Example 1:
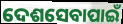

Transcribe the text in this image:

ଦେଶସେବାପାଇଁ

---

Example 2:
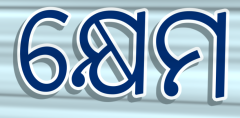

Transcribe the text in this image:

କ୍ଷେମ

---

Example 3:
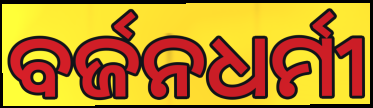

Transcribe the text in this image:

ବର୍ଜନଧର୍ମୀ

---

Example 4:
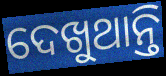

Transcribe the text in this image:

ଦେଖୁଥାନ୍ତି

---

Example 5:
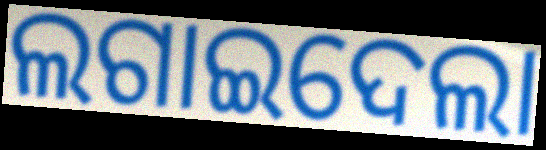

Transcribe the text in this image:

ଲଗାଇଦେଲା